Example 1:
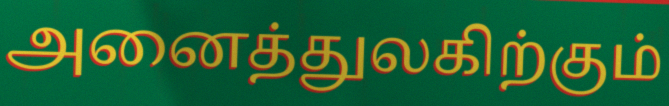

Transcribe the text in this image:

அனைத்துலகிற்கும்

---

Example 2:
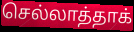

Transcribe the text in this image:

செல்லாத்தாக்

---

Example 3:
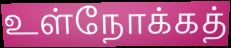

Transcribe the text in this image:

உள்நோக்கத்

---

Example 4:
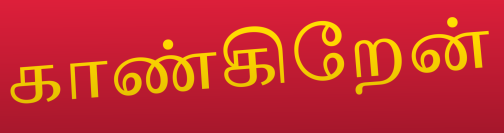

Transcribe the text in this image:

காண்கிறேன்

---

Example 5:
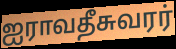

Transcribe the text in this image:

ஐராவதீசுவரர்